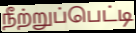
நீற்றுப்பெட்டி